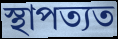
স্থাপত্যত